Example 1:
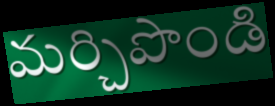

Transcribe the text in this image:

మర్చిపొండి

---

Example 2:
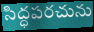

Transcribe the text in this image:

సిద్ధపరచును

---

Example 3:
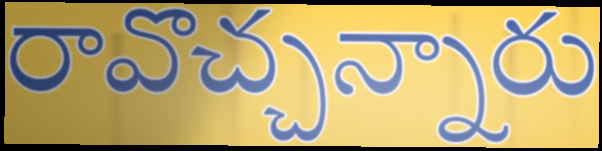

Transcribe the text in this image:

రావొచ్చన్నారు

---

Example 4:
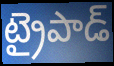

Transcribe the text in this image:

ట్రైపాడ్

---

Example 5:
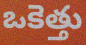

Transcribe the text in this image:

ఒకెత్తు